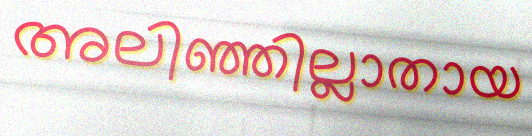
അലിഞ്ഞില്ലാതായ